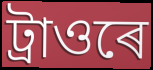
ট্ৰাওৰে